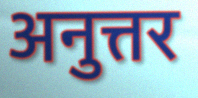
अनुत्तर